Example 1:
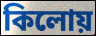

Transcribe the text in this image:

কিলোয়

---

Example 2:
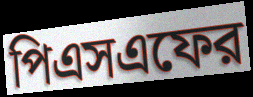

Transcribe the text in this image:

পিএসএফের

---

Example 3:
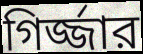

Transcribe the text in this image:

গির্জ্জার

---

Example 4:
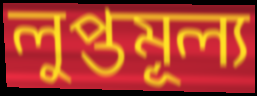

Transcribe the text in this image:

লুপ্তমূল্য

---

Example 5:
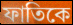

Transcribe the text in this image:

ফাতিকে